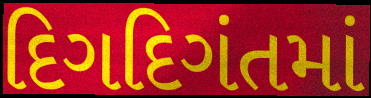
દિગદિગંતમાં